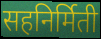
सहनिर्मिती